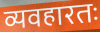
व्यवहारतः